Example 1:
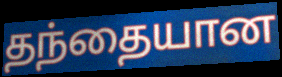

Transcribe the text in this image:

தந்தையான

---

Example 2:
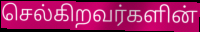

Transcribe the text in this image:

செல்கிறவர்களின்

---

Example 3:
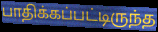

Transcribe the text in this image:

பாதிக்கப்பட்டிருந்த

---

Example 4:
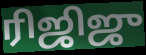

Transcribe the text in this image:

ரிஜிஜு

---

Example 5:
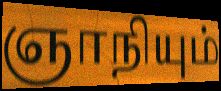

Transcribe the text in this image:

ஞாநியும்